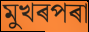
মুখৰপৰা